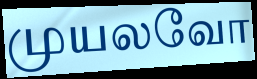
முயலவோ